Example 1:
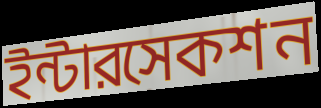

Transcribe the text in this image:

ইন্টারসেকশন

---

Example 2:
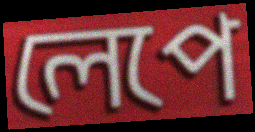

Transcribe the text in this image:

লেপে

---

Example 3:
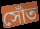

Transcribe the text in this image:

সোঁত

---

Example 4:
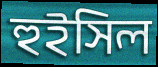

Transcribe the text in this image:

হুইসিল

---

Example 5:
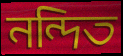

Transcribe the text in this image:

নন্দিত